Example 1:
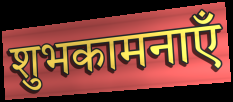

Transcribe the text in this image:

शुभकामनाएँ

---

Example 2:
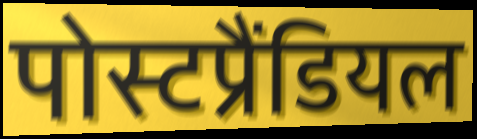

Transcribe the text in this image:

पोस्टप्रैंडियल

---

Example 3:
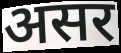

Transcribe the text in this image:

असर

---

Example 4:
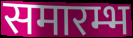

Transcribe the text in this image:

समारम्भ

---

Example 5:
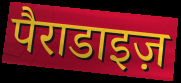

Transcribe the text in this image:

पैराडाइज़